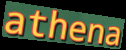
athena